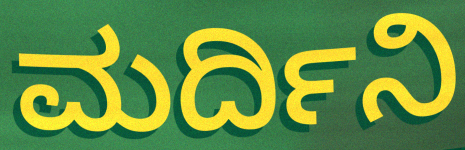
ಮರ್ದಿನಿ